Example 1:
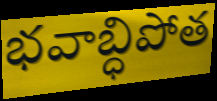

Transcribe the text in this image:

భవాబ్ధిపోత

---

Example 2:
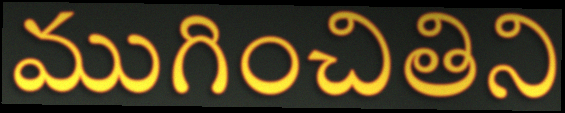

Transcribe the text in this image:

ముగించితిని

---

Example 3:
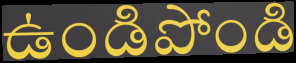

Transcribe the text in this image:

ఉండిపోండి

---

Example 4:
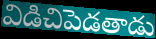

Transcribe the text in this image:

విడిచిపెడతాడు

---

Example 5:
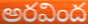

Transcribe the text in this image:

అరవింద